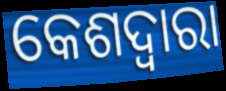
କେଶଦ୍ବାରା